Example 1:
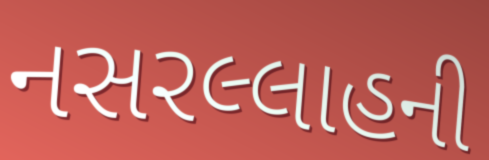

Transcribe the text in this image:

નસરલ્લાહની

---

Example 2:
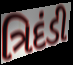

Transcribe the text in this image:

ત્રિદંડી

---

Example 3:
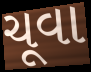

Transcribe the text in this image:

ચૂવા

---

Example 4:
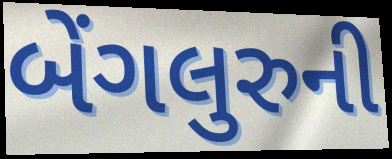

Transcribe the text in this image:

બેંગલુરુની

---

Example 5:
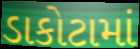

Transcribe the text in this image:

ડાકોટામાં